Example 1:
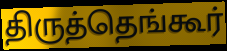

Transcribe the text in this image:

திருத்தெங்கூர்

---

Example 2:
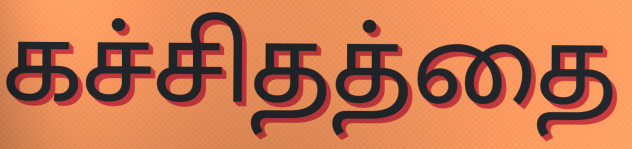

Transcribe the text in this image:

கச்சிதத்தை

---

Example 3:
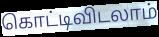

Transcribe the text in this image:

கொட்டிவிடலாம்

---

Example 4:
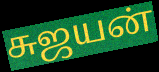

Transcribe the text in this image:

சுஜயன்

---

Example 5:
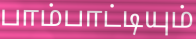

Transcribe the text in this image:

பாம்பாட்டியும்